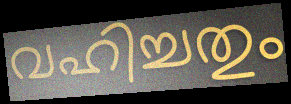
വഹിച്ചതും